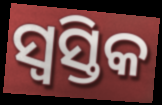
ସ୍ୱସ୍ତିକ